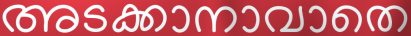
അടക്കാനാവാതെ